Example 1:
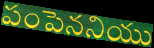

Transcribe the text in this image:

పంపెననియు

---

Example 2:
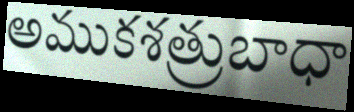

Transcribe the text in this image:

అముకశత్రుబాధా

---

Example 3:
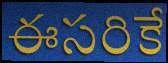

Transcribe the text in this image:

ఈసరికే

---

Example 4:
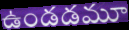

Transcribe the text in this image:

ఉండడమూ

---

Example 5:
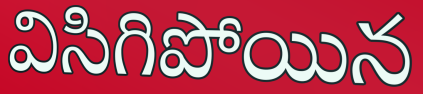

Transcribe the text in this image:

విసిగిపోయిన